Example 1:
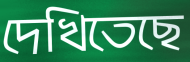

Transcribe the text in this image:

দেখিতেছে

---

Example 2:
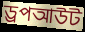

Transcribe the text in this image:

ড্রপআউট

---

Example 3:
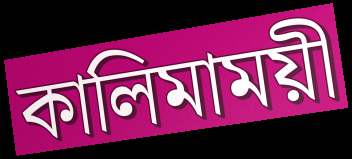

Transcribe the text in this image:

কালিমাময়ী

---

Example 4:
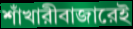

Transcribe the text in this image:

শাঁখারীবাজারেই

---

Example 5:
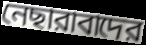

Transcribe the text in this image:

নেছারাবাদের